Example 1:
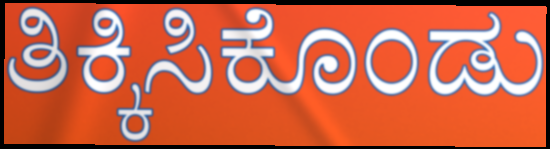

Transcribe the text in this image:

ತಿಕ್ಕಿಸಿಕೊಂಡು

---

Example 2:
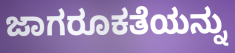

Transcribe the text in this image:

ಜಾಗರೂಕತೆಯನ್ನು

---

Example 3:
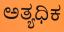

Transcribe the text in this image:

ಅತ್ಯಧಿಕ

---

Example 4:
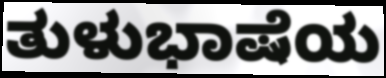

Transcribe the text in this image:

ತುಳುಭಾಷೆಯ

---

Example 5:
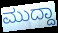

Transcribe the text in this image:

ಮುದ್ದಾ